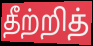
தீற்றித்